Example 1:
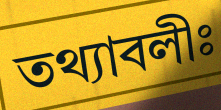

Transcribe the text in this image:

তথ্যাবলীঃ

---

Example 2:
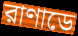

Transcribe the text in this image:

রাণাডে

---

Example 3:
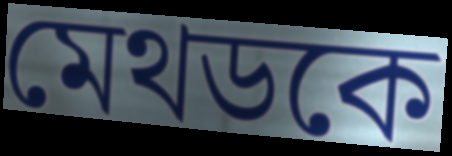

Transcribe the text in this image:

মেথডকে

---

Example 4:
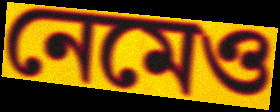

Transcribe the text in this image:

নেমেও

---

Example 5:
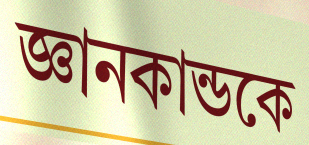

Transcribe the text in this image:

জ্ঞানকান্ডকে